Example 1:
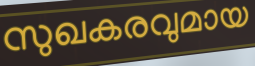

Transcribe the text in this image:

സുഖകരവുമായ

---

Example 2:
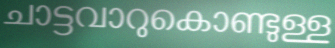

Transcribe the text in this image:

ചാട്ടവാറുകൊണ്ടുള്ള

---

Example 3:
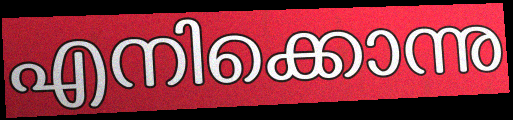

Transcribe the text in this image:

എനിക്കൊന്നു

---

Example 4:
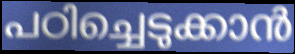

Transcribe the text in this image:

പഠിച്ചെടുക്കാൻ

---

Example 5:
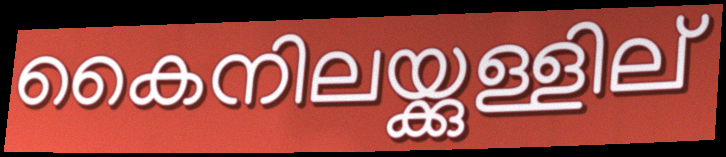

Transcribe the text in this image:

കൈനിലയ്ക്കുള്ളില്